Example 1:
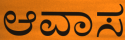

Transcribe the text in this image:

ಆವಾಸ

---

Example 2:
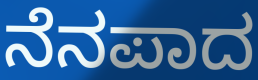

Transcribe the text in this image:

ನೆನಪಾದ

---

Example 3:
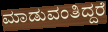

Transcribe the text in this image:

ಮಾಡುವಂತಿದ್ದರೆ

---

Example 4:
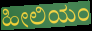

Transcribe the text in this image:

ಹೀಲಿಯಂ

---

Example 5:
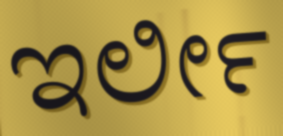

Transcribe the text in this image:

ಇರ್ಲೀ